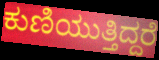
ಕುಣಿಯುತ್ತಿದ್ದರೆ